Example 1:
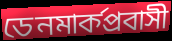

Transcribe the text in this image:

ডেনমার্কপ্রবাসী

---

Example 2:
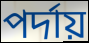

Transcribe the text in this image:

পর্দায়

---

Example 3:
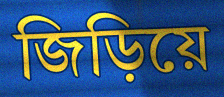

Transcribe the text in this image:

জিড়িয়ে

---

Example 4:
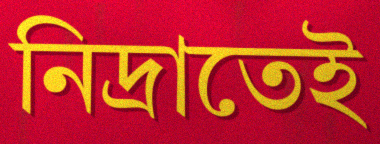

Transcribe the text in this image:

নিদ্রাতেই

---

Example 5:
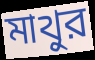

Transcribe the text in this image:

মাথুর